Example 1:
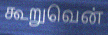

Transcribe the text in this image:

கூறுவென்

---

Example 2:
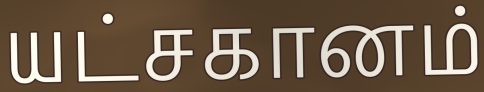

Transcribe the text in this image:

யட்சகானம்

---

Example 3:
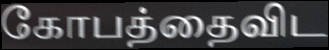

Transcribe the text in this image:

கோபத்தைவிட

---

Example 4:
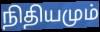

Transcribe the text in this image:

நிதியமும்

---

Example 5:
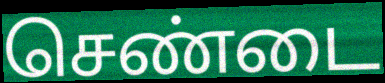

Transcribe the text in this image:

செண்டை